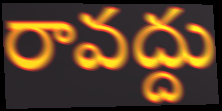
రావద్దు